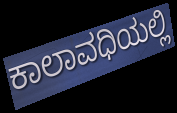
ಕಾಲಾವಧಿಯಲ್ಲಿ